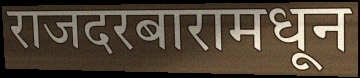
राजदरबारामधून